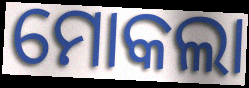
ମୋକଲା